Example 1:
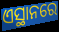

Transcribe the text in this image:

ଏସ୍ଥାନରେ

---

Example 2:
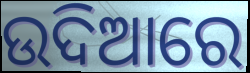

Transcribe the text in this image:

ଉଦିଆରେ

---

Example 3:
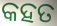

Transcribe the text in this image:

କହତ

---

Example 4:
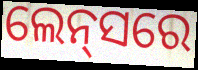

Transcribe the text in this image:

ଲେନ୍‌ସରେ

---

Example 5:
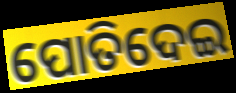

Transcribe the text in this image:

ପୋତିଦେଇ